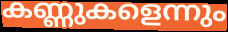
കണ്ണുകളെന്നും